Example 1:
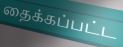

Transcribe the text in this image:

தைக்கப்பட்ட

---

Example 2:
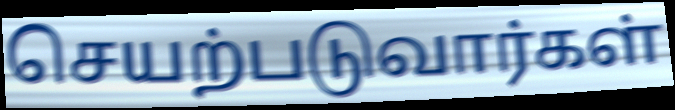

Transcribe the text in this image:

செயற்படுவார்கள்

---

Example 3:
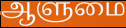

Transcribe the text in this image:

ஆளுமை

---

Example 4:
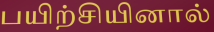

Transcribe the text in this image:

பயிற்சியினால்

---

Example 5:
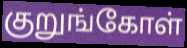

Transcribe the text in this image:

குறுங்கோள்